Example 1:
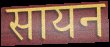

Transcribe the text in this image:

सायन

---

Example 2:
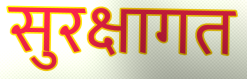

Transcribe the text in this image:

सुरक्षागत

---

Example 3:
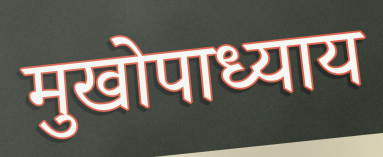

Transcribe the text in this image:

मुखोपाध्याय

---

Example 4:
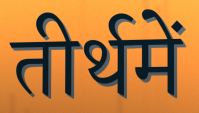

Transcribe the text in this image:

तीर्थमें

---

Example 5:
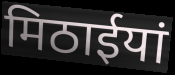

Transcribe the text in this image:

मिठाईयां